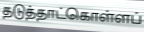
தடுத்தாட்கொள்ளப்